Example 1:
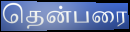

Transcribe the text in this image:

தென்பரை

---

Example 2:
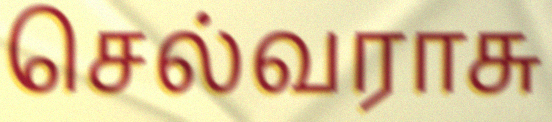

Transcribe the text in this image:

செல்வராசு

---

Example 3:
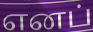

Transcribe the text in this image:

எனப்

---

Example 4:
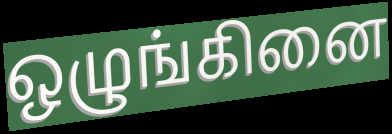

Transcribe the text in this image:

ஒழுங்கினை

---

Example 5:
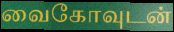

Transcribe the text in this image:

வைகோவுடன்